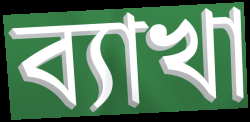
ব্যাখা